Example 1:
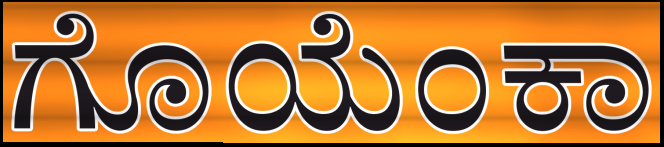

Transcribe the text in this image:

ಗೊಯೆಂಕಾ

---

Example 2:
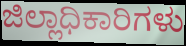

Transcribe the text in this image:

ಜಿಲ್ಲಾಧಿಕಾರಿಗಳು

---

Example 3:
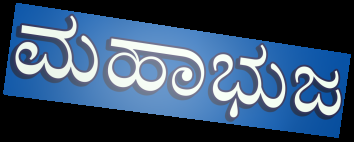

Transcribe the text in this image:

ಮಹಾಭುಜ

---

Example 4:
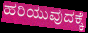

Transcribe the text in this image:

ಹರಿಯುವುದಕ್ಕೆ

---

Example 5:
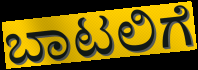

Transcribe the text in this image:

ಬಾಟಲಿಗೆ